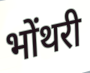
भोंथरी